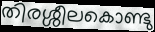
തിരശ്ശീലകൊണ്ടു